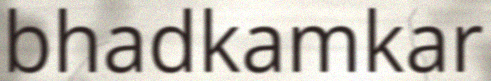
bhadkamkar